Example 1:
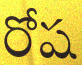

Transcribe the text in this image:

రోష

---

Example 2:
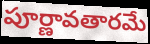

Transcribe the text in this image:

పూర్ణావతారమే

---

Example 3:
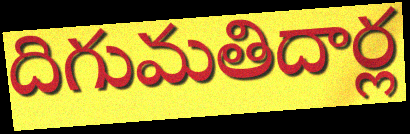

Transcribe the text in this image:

దిగుమతిదార్ల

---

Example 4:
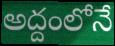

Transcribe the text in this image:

అద్దంలోనే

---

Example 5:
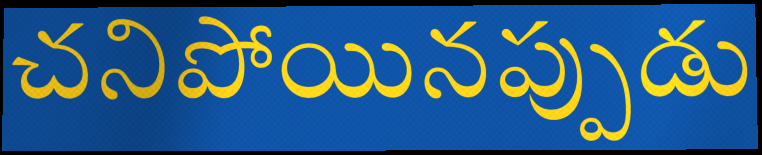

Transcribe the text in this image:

చనిపోయినప్పుడు